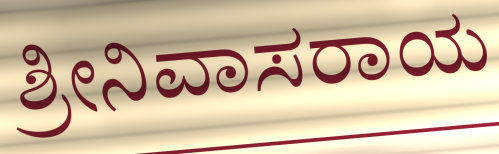
ಶ್ರೀನಿವಾಸರಾಯ